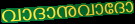
വാദാനുവാദോ